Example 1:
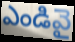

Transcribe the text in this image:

ఎండివై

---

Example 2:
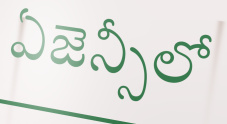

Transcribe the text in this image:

ఏజెన్సీలో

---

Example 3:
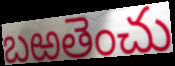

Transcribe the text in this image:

బఱతెంచు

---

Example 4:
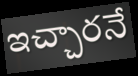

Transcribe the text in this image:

ఇచ్చారనే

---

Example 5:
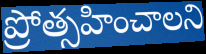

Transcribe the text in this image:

ప్రోత్సహించాలని